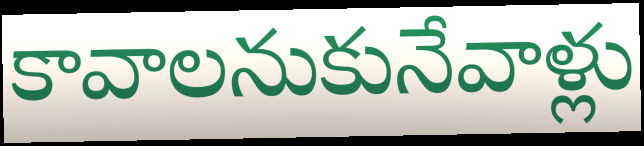
కావాలనుకునేవాళ్లు